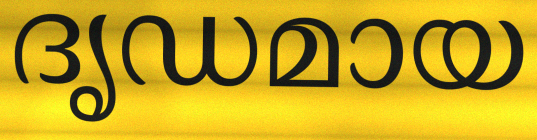
ദൃഡമായ